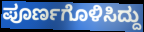
ಪೂರ್ಣಗೊಳಿಸಿದ್ದು